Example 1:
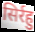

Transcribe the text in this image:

सिर्रहु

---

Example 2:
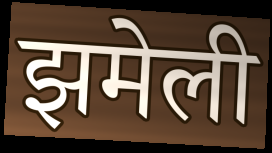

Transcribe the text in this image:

झमेली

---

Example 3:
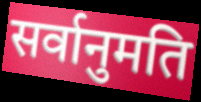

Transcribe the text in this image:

सर्वानुमति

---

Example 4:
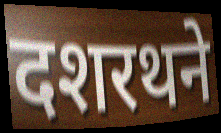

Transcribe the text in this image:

दशरथने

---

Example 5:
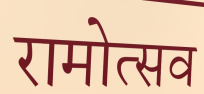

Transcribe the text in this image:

रामोत्सव